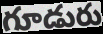
గూడురు